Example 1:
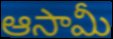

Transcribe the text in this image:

ఆసామీ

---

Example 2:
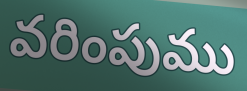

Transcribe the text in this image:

వరింపుము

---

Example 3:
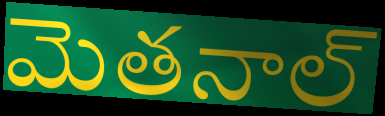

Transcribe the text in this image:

మెతనాల్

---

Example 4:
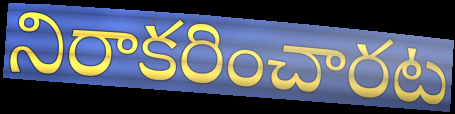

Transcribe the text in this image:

నిరాకరించారట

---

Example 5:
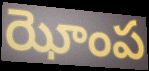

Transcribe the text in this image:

ఝోంప